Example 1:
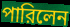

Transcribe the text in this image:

পারিলেন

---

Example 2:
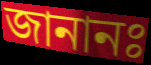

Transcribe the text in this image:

জানানঃ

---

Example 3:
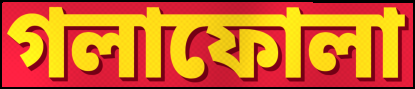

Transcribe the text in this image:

গলাফোলা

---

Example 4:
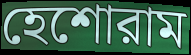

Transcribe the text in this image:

হেশোরাম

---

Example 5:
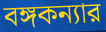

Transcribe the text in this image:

বঙ্গকন্যার